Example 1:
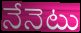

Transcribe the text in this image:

నేనెటు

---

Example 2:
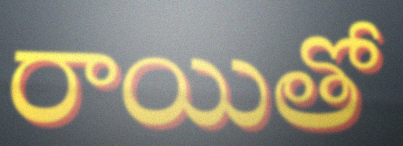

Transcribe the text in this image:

రాయితో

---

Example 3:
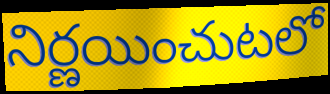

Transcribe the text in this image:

నిర్ణయించుటలో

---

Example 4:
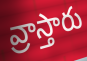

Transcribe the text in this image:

వ్రాస్తారు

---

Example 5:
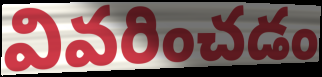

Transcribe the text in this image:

వివరించడం